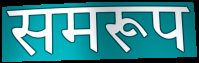
समरूप